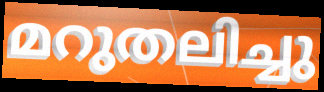
മറുതലിച്ചു